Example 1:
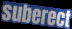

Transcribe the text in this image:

suberect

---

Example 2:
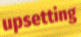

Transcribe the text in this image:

upsetting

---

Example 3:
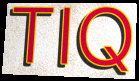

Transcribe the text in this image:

TIQ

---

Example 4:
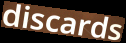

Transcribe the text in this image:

discards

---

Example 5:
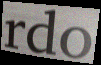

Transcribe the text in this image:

rdo